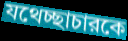
যথেচ্ছাচারকে